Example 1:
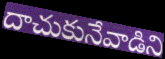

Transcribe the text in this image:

దాచుకునేవాడిని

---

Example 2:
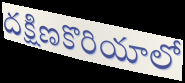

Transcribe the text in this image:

దక్షిణకొరియాలో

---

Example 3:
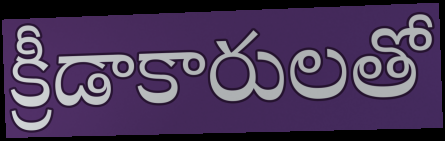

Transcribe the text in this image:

క్రీడాకారులతో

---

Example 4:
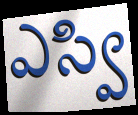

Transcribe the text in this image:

ఎస్వి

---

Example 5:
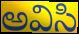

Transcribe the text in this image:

అవిసి